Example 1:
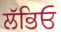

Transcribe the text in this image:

ਲੱਭਿਓ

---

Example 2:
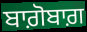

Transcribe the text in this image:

ਬਾਗ਼ੋਬਾਗ਼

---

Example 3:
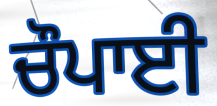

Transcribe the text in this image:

ਚੌਪਾਈ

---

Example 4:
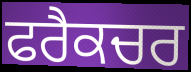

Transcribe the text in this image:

ਫਰੈਕਚਰ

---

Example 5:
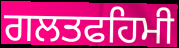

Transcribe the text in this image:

ਗਲਤਫਹਿਮੀ